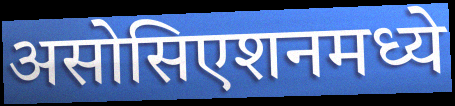
असोसिएशनमध्ये